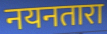
नयनतारा